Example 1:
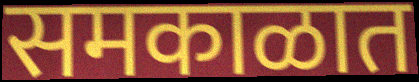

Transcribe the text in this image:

समकाळात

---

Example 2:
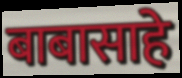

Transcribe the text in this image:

बाबासाहे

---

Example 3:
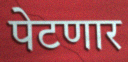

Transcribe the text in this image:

पेटणार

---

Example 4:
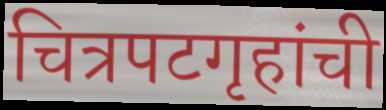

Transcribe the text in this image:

चित्रपटगृहांची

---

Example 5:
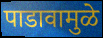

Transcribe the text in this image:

पाडावामुळे